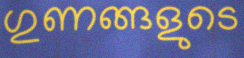
ഗുണങ്ങളുടെ